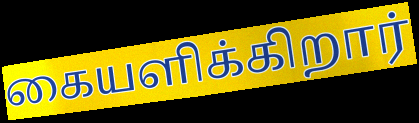
கையளிக்கிறார்